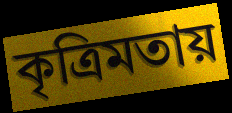
কৃত্রিমতায়